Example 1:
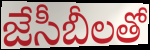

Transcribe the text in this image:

జేసీబీలతో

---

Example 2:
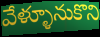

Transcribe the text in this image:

వేళ్ళూనుకొని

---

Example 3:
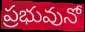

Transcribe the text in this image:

ప్రభువునో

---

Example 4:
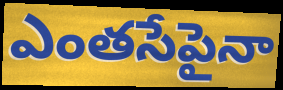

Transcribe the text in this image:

ఎంతసేపైనా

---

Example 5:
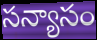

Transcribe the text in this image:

సన్యాసం